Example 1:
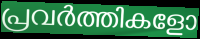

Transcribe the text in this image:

പ്രവർത്തികളോ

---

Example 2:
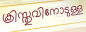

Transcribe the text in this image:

ക്രിസ്തുവിനോടുള്ള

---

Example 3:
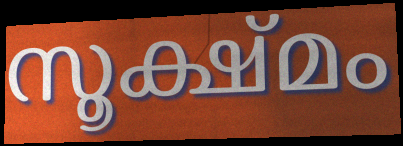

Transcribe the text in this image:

സൂക്ഷ്‌മം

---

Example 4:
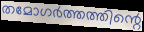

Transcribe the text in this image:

തമോഗർത്തത്തിന്റെ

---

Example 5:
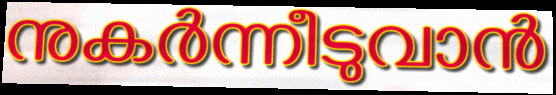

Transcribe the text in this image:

നുകർന്നീടുവാൻ